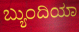
ಬ್ಯುಂದಿಯಾ